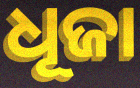
ଧୂଜା